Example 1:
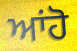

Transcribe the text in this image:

ਆਂਹੋ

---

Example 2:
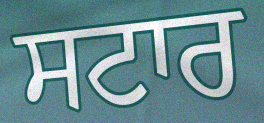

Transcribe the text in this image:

ਸਟਾਰ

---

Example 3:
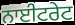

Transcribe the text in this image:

ਨਾਈਟਰੇਟ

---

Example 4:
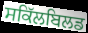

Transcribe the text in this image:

ਸਕਿੱਲਬਿਲਡ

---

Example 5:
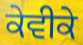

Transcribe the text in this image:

ਕੇਵੀਕੇ